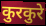
कुरकुरे